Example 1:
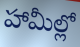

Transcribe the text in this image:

హామీల్లో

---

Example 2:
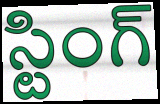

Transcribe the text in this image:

స్టింగ్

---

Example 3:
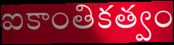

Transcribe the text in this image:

ఐకాంతికత్వం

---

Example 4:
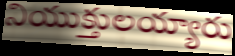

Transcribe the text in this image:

నియుక్తులయ్యారు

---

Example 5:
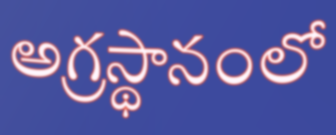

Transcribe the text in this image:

అగ్రస్థానంలో